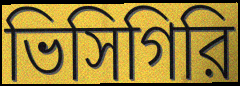
ভিসিগিরি